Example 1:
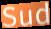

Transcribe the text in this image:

Sud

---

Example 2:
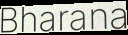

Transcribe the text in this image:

Bharana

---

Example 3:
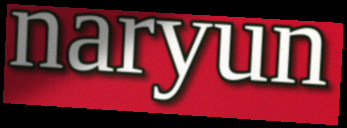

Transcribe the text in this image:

naryun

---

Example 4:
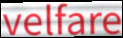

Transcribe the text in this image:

velfare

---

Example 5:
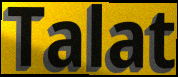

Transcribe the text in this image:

Talat